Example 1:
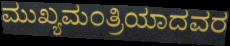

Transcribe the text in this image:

ಮುಖ್ಯಮಂತ್ರಿಯಾದವರ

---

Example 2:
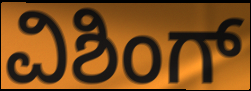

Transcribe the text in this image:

ವಿಶಿಂಗ್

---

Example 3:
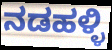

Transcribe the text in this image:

ನಡಹಳ್ಳಿ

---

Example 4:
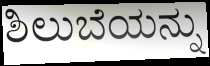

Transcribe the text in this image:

ಶಿಲುಬೆಯನ್ನು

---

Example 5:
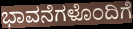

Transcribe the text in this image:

ಭಾವನೆಗಳೊಂದಿಗೆ